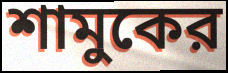
শামুকের